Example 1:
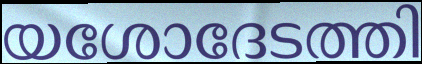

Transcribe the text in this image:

യശോദേടത്തി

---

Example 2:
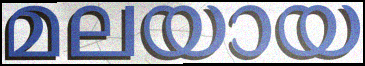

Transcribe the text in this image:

മലയായ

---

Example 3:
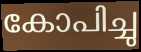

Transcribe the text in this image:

കോപിച്ചു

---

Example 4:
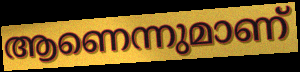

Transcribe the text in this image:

ആണെന്നുമാണ്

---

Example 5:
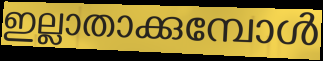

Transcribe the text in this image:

ഇല്ലാതാക്കുമ്പോൾ